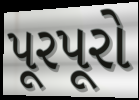
પૂરપૂરો